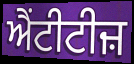
ਐਂਟੀਟੀਜ਼